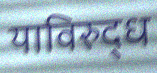
याविरुद्ध